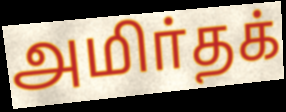
அமிர்தக்